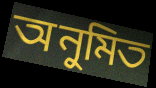
অনুমিত